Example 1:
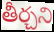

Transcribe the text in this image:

తీర్చని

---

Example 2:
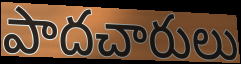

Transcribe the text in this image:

పాదచారులు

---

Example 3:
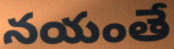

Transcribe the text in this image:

నయంతే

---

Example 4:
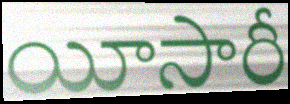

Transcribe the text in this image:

యీసారీ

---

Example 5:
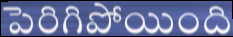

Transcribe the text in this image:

పెరిగిపోయింది